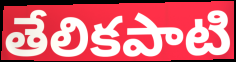
తేలికపాటి